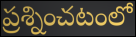
ప్రశ్నించటంలో